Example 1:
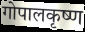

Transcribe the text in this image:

गोपालकृष्‍ण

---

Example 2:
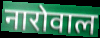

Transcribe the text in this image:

नारोवाल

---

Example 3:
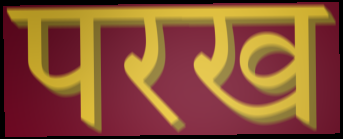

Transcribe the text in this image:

परख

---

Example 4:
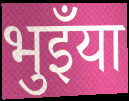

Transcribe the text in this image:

भुइँया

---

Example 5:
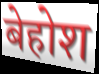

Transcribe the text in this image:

बेहोश